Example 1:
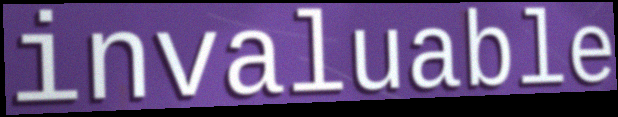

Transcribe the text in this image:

invaluable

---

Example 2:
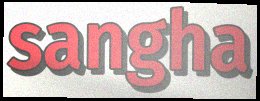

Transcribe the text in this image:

sangha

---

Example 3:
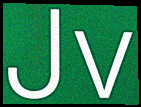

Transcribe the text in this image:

Jv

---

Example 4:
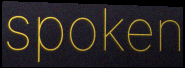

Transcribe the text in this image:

spoken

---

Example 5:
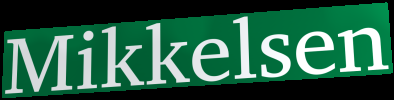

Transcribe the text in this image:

Mikkelsen